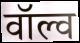
वॉल्व